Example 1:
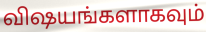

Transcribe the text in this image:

விஷயங்களாகவும்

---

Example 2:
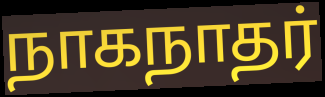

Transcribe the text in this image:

நாகநாதர்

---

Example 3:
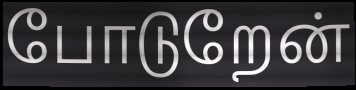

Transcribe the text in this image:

போடுறேன்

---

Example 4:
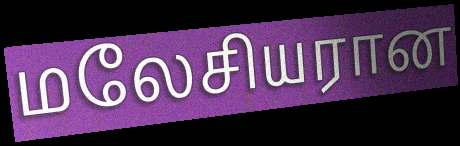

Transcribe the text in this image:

மலேசியரான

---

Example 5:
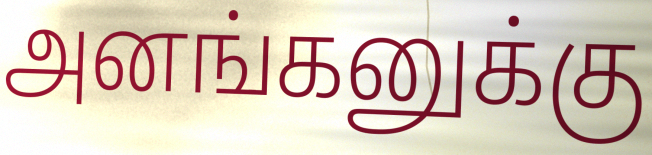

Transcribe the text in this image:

அனங்கனுக்கு